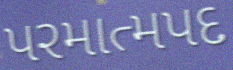
પરમાત્મપદ